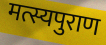
मत्स्यपुराण